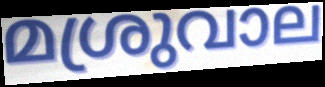
മശ്രുവാല